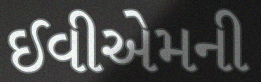
ઈવીએમની